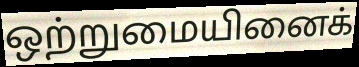
ஒற்றுமையினைக்